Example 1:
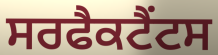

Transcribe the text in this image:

ਸਰਫੈਕਟੈਂਟਸ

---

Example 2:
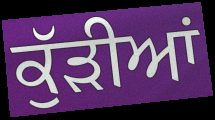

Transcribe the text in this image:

ਕੁੱੜੀਆਂ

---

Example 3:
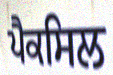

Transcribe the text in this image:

ਪੈਕਸਿਲ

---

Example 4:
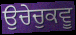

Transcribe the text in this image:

ਉਚੇਚੁਕਵੂ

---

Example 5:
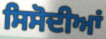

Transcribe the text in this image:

ਸਿਸੋਦੀਆਂ